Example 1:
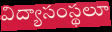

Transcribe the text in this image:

విద్యాసంస్థలూ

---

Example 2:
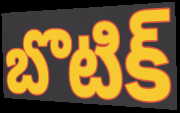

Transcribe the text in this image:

బొటిక్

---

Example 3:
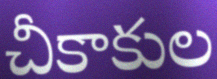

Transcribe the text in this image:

చీకాకుల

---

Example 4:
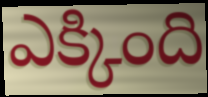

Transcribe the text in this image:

ఎక్కింది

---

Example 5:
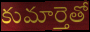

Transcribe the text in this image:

కుమార్తెతో